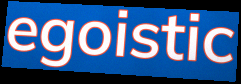
egoistic